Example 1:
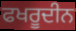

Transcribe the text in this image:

ਫਖਰੂਦੀਨ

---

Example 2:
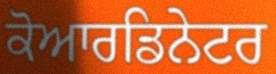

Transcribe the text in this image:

ਕੋਆਰਡਿਨੇਟਰ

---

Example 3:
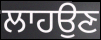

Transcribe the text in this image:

ਲਾਹਉਣ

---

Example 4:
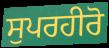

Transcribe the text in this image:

ਸੁਪਰਹੀਰੋ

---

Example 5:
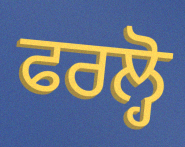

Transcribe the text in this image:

ਫਰਲ੍ਹੋ